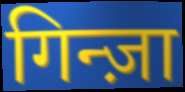
गिन्ज़ा